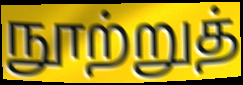
நூற்றுத்